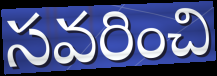
సవరించి